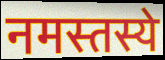
नमस्तस्ये